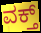
ವಕ್ತ್